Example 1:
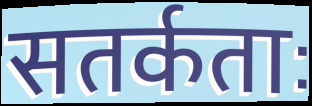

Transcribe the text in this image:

सतर्कताः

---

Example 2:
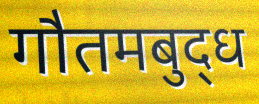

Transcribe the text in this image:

गौतमबुद्ध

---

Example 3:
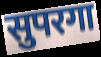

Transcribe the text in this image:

सुपरगा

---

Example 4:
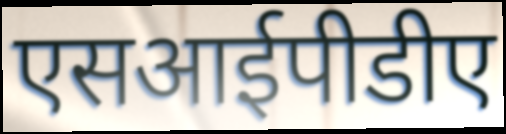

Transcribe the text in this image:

एसआईपीडीए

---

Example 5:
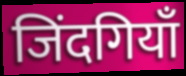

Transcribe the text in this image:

जिंदगियाँ